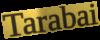
Tarabai